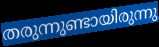
തരുന്നുണ്ടായിരുന്നു